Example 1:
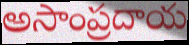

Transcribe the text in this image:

అసాంప్రదాయ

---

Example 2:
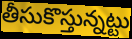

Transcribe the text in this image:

తీసుకొస్తున్నట్టు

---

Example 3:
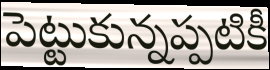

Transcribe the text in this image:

పెట్టుకున్నప్పటికీ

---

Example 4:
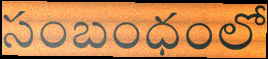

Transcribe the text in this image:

సంబంధంలో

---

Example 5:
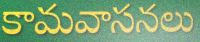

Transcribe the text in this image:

కామవాసనలు